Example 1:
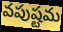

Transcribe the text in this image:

వపుష్టమ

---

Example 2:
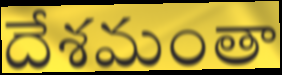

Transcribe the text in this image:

దేశమంతా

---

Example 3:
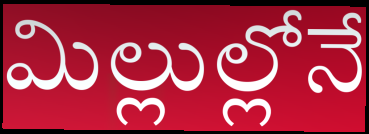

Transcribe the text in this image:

మిల్లుల్లోనే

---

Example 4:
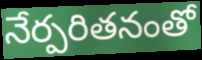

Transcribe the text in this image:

నేర్పరితనంతో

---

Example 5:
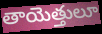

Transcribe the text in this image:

తాయెత్తులూ